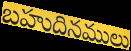
బహుదినములు